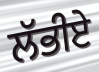
ਲੱਭੀਏ